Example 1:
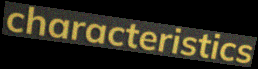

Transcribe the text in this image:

characteristics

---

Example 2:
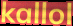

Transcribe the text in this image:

kallol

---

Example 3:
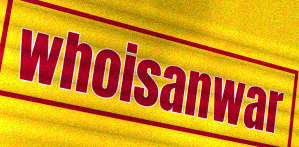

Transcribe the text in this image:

whoisanwar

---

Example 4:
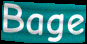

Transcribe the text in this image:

Bage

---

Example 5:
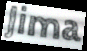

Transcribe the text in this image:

Jima